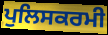
ਪੁਲਿਸਕਰਮੀ